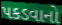
પકડવાનો